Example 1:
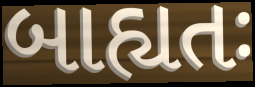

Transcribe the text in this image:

બાહ્યતઃ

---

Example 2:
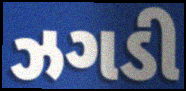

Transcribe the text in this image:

ઝગડી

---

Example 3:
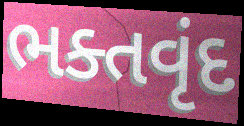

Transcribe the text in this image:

ભક્તવૃંદ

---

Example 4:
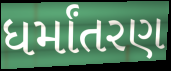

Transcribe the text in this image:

ધર્માંતરણ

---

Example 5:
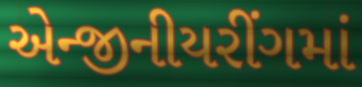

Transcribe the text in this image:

એન્જીનીયરીંગમાં